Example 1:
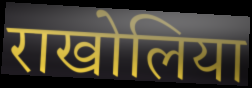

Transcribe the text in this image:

राखोलिया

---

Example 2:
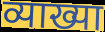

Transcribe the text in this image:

व्याख्‍या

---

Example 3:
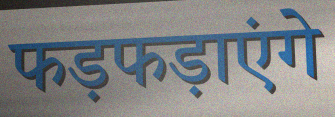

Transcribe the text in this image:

फड़फड़ाएंगे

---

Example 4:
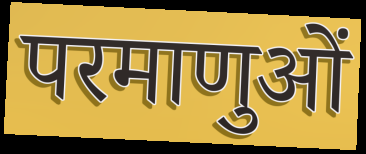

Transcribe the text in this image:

परमाणुओं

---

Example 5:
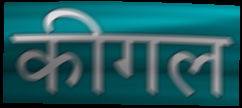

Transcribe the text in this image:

कीगल